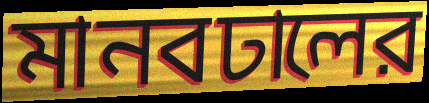
মানবঢালের